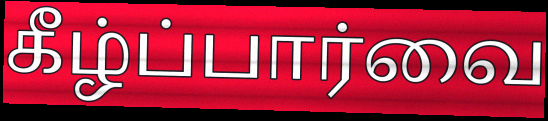
கீழ்ப்பார்வை